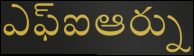
ఎఫ్ఐఆర్ను